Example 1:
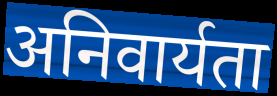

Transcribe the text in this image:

अनिवार्यता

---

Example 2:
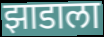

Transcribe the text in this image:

झाडाला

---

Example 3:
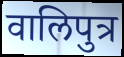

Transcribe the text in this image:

वालिपुत्र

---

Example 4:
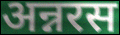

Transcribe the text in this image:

अन्नरस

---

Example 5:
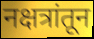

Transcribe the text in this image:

नक्षत्रांतून